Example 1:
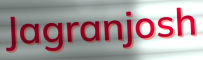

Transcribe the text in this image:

Jagranjosh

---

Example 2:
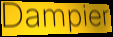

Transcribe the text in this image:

Dampier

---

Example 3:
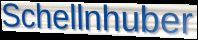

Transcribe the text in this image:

Schellnhuber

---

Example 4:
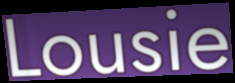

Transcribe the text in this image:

Lousie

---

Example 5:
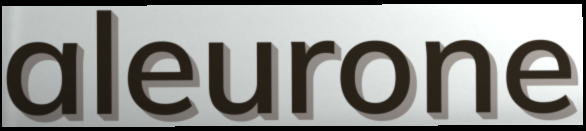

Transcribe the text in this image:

aleurone